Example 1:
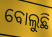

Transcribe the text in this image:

ବୋଲୁଛି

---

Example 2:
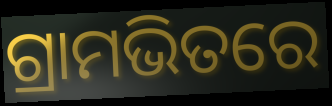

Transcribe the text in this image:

ଗ୍ରାମଭିତରେ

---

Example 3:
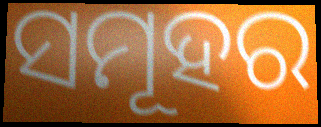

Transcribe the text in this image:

ସମୂହର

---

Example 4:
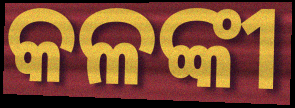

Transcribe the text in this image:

କଳଙ୍କୀ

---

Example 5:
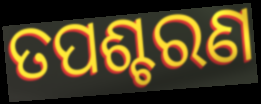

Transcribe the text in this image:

ତପଶ୍ଚରଣ